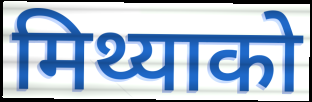
मिथ्याको